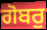
ਗੋਬਰੁ